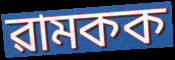
ৱামকক